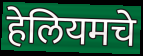
हेलियमचे